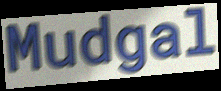
Mudgal